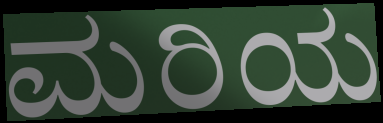
ಮರಿಯ